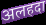
अलहदा